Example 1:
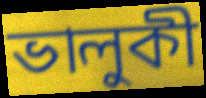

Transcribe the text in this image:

ভালুকী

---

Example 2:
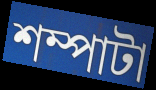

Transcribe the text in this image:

শম্পাটা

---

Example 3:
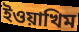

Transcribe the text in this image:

ইওয়াখিম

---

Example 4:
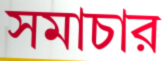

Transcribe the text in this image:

সমাচার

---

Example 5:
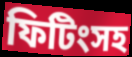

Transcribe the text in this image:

ফিটিংসহ